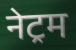
नेट्रम